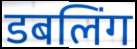
डबलिंग